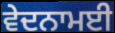
ਵੇਦਨਾਮਈ